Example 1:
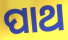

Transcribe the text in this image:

ପାଥ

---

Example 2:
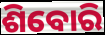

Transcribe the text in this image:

ଶିବୋରି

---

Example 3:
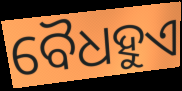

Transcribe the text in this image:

ବୈଧହୁଏ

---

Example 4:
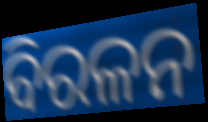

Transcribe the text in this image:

ବିରଳନ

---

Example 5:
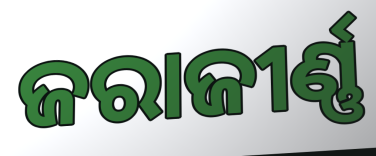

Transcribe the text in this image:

ଜରାଜୀର୍ଣ୍ଣ